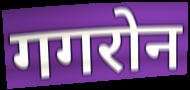
गगरोन